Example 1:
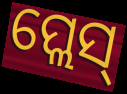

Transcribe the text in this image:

ପ୍ଲେସ୍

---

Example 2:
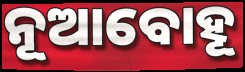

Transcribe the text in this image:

ନୂଆବୋହୂ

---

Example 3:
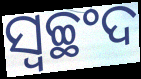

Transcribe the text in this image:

ସ୍ୱଚ୍ଛଂଦ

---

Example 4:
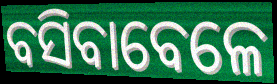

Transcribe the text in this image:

ବସିବାବେଳେ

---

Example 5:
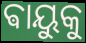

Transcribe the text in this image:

ଵାୟୁକୁ